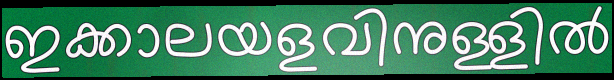
ഇക്കാലയളവിനുള്ളിൽ